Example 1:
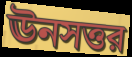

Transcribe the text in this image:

ঊনসত্তর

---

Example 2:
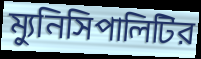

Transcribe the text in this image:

ম্যুনিসিপালিটির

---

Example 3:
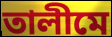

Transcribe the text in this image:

তালীমে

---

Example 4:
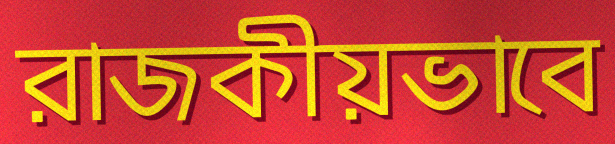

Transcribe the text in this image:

রাজকীয়ভাবে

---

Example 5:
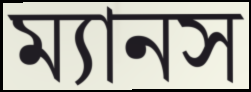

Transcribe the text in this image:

ম্যানস